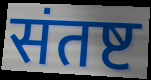
संतष्ट